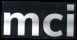
mci